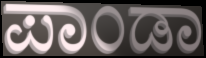
ಪಾಂಡಾ